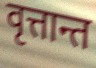
वृत्तान्त